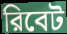
রিবেট